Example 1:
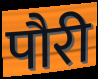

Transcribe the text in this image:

पौरी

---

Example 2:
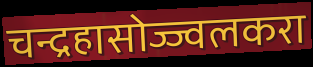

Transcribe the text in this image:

चन्द्रहासोज्ज्वलकरा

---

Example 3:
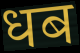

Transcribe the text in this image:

धब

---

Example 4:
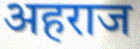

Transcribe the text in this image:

अहराज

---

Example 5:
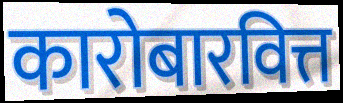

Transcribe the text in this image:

कारोबारवित्त